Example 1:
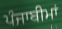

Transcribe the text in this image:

ਪੰਜਾਬੀਮਾਂ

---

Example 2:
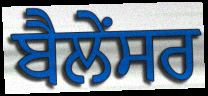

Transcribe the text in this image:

ਬੈਲੇਂਸਰ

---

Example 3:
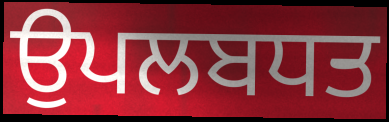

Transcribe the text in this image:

ਉਪਲਬਧਤ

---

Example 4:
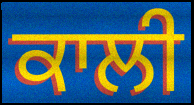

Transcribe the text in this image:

ਕਾਲੀ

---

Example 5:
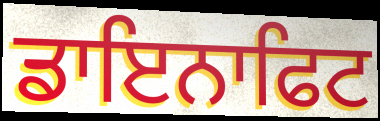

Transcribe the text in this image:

ਡਾਇਨਾਫਿਟ